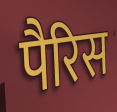
पैरिस